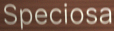
Speciosa